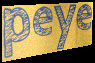
peye